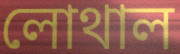
লোথাল